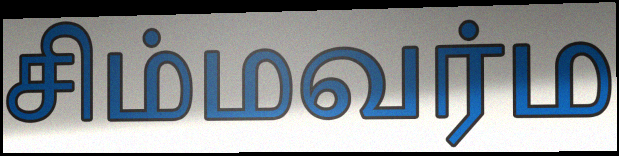
சிம்மவர்ம